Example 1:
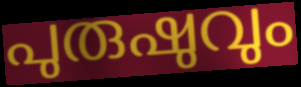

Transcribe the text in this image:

പുരുഷുവും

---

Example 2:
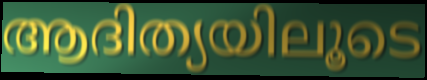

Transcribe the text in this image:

ആദിത്യയിലൂടെ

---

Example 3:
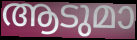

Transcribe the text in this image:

ആടുമാ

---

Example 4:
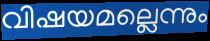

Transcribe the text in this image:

വിഷയമല്ലെന്നും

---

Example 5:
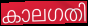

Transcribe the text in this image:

കാലഗതി